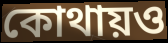
কোথায়ও